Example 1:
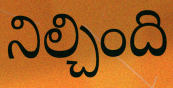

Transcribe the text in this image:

నిల్చింది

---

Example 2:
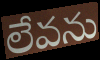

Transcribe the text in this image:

లేవను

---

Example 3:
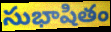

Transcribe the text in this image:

సుభాషితం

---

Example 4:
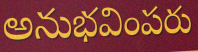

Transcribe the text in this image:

అనుభవింపరు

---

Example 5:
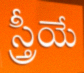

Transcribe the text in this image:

స్త్రీయే